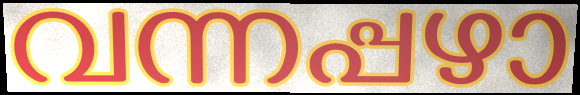
വന്നപ്പഴാ